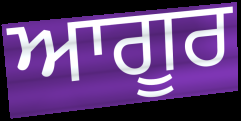
ਆਗੂਰ